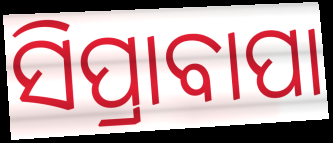
ସିପ୍ରାବାପା